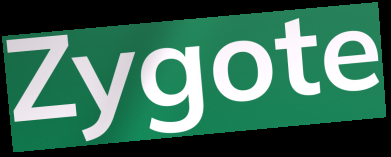
Zygote